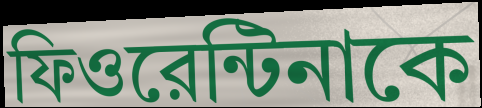
ফিওরেন্টিনাকে